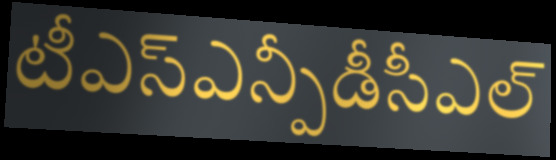
టీఎస్ఎన్పీడీసీఎల్